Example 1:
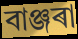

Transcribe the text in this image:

বাঞ্জৰা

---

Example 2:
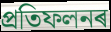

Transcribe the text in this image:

প্ৰতিফলনৰ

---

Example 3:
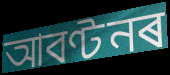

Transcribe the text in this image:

আবণ্টনৰ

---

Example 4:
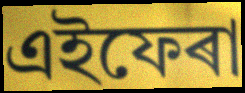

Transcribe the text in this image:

এইফেৰা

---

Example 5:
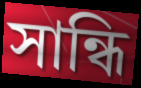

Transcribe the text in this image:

সান্ধি